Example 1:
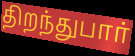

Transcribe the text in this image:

திறந்துபார்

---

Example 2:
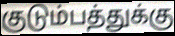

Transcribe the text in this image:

குடும்பத்துக்கு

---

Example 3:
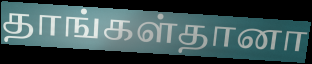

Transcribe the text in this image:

தாங்கள்தானா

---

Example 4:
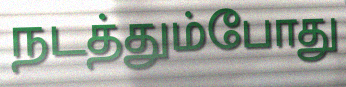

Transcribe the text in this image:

நடத்தும்போது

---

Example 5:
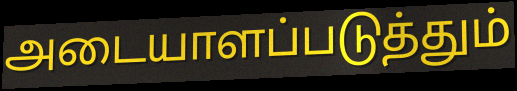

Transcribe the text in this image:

அடையாளப்படுத்தும்